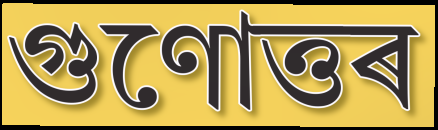
গুণোত্তৰ